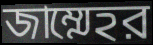
জাম্মেহর